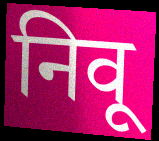
निवू